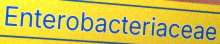
Enterobacteriaceae